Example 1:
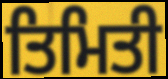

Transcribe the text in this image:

ਤਿਮਿਤੀ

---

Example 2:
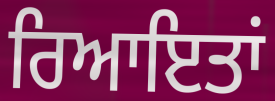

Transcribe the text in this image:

ਰਿਆਇਤਾਂ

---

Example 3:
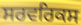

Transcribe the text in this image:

ਸਰਵਰਿਕਸ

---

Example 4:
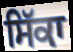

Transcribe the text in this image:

ਸਿੱਕਾ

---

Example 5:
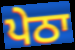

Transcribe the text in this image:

ਪੇਠਾ